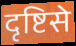
दृष्टिसे